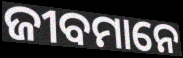
ଜୀବମାନେ